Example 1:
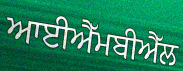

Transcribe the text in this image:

ਆਈਐੱਮਬੀਐੱਲ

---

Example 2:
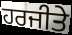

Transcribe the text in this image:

ਹਰਜੀਤੇ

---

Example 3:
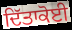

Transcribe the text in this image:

ਦਿੱਤਾਕੋਈ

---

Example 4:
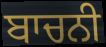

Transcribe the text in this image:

ਬਾਚਨੀ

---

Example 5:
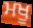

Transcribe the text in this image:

ਮਖੂ